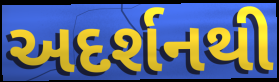
અદર્શનથી